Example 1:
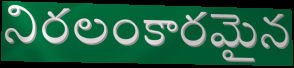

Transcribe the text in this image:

నిరలంకారమైన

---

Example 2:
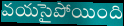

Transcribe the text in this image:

వయసైపోయింది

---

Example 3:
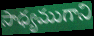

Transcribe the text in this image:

సాధ్యముగాని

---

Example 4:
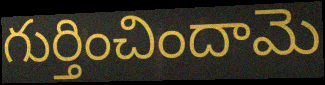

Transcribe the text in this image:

గుర్తించిందామె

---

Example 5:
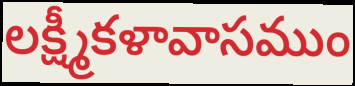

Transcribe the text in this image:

లక్ష్మీకళావాసముం